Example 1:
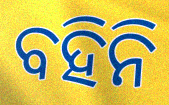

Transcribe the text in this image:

ବହିନି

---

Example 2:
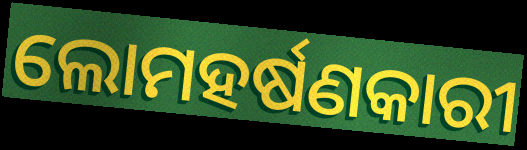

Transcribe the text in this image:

ଲୋମହର୍ଷଣକାରୀ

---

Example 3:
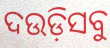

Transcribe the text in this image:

ଦଉଡ଼ିସବୁ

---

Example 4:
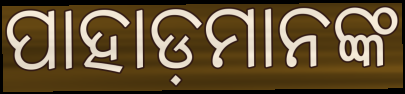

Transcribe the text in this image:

ପାହାଡ଼ମାନଙ୍କ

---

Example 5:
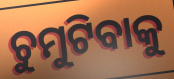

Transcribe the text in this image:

ଚୁମୁଟିବାକୁ